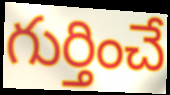
గుర్తించే